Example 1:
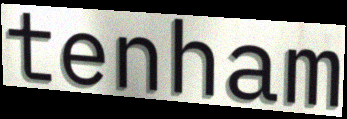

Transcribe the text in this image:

tenham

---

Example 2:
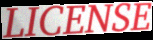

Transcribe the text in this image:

LICENSE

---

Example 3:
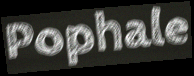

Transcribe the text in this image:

Pophale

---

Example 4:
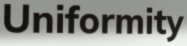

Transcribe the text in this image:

Uniformity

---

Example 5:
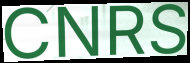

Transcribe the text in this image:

CNRS